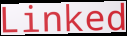
Linked